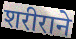
शरीराने